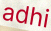
adhi